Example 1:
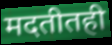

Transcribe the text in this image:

मदतीतही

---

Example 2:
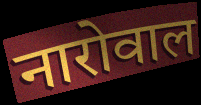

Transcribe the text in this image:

नारोवाल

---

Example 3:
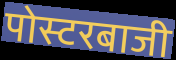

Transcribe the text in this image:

पोस्टरबाजी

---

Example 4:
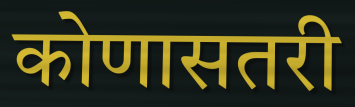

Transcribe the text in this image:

कोणासतरी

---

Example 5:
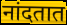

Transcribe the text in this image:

नांदतात